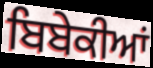
ਬਿਬੇਕੀਆਂ